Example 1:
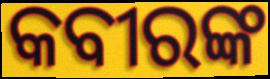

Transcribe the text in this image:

କବୀରଙ୍କ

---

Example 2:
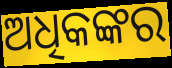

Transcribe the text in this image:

ଅଧିକଙ୍କର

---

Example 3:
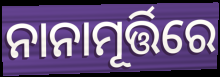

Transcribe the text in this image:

ନାନାମୂର୍ତ୍ତିରେ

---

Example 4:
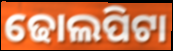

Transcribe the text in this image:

ଢୋଲପିଟା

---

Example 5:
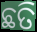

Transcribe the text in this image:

ଛତି